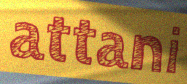
attani